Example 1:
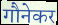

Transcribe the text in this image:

गौनेकर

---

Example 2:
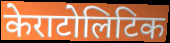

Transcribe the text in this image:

केराटोलिटिक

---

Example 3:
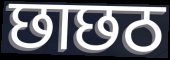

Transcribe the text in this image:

छाछठ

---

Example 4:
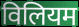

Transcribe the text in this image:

विलियम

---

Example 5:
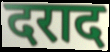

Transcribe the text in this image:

दराद